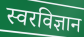
स्वरविज्ञान